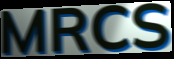
MRCS